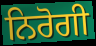
ਨਿਰੋਗੀ